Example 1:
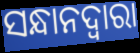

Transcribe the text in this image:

ସନ୍ଧାନଦ୍ୱାରା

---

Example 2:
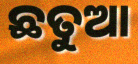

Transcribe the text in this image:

ଛତୁଆ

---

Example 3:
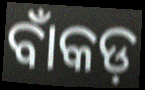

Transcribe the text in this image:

ବାଁକଡ଼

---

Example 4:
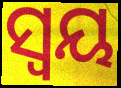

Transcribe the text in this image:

ସ୍ୱୟ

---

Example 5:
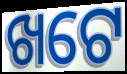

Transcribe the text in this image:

ଖଟେ